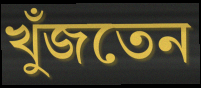
খুঁজতেন